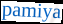
pamiya